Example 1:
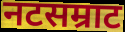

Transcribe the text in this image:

नटसम्राट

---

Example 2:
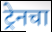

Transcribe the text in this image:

ट्रेनचा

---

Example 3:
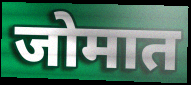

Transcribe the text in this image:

जोमात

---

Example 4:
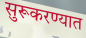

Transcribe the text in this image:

सुरूकरण्यात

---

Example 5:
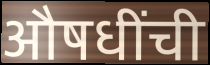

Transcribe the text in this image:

औषधींची